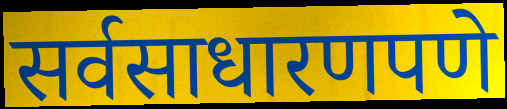
सर्वसाधारणपणे